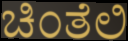
ಚಿಂತೆಲಿ